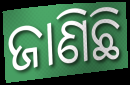
ଜାଣିଛି